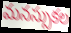
మనస్సుకల